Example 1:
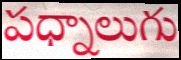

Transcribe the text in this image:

పధ్నాలుగు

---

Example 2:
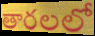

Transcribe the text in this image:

తారలలో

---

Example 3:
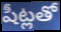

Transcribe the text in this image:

షీట్లతో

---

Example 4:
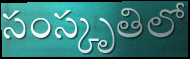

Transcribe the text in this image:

సంస్కృతిలో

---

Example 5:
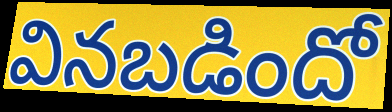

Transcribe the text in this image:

వినబడిందో